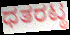
ಧತರಟ್ಠ